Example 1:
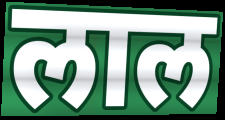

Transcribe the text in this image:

लाल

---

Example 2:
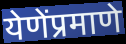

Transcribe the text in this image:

येणेंप्रमाणे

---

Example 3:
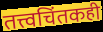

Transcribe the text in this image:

तत्त्वचिंतकही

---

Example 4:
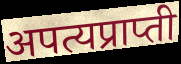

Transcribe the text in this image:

अपत्यप्राप्ती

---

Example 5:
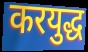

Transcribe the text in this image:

करयुद्ध